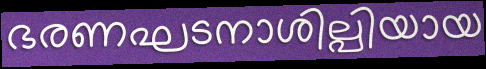
ഭരണഘടനാശില്പിയായ